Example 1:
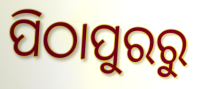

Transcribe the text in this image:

ପିଠାପୁରରୁ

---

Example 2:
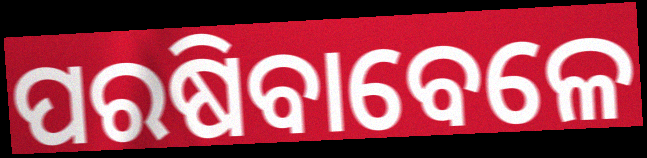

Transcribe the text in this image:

ପରଷିବାବେଳେ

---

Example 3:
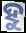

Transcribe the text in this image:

ହୁ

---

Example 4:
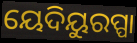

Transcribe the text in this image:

ୟେଦିୟୁରପ୍ପା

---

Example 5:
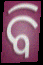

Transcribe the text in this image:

ବି